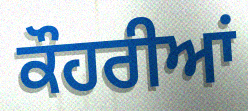
ਕੌਹਰੀਆਂ